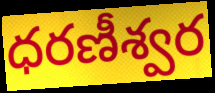
ధరణీశ్వర